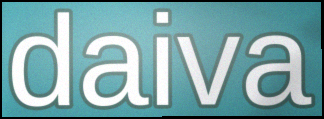
daiva